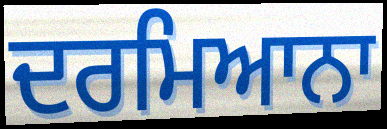
ਦਰਮਿਆਨਾ